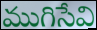
ముగిసేవి